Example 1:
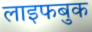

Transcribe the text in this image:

लाइफबुक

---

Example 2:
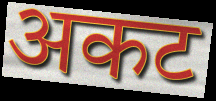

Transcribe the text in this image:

अकट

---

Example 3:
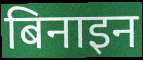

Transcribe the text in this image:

बिनाइन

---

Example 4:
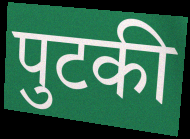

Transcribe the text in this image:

पुटकी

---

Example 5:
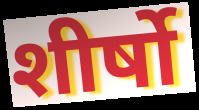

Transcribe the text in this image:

शीर्षो